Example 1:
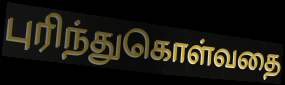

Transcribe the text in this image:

புரிந்துகொள்வதை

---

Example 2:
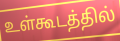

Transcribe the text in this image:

உள்கூடத்தில்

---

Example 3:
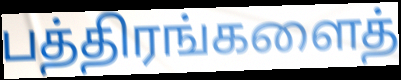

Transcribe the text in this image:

பத்திரங்களைத்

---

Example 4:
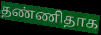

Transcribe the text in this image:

தண்ணிதாக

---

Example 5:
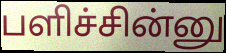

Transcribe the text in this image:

பளிச்சின்னு